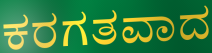
ಕರಗತವಾದ